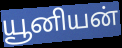
யூனியன்